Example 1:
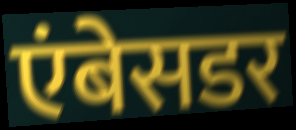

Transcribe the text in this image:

एंबेसडर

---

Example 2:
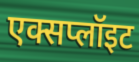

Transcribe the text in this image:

एक्सप्लॉइट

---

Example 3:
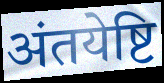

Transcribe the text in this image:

अंतयेष्टि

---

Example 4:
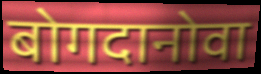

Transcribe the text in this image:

बोगदानोवा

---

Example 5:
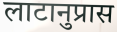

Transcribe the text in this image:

लाटानुप्रास